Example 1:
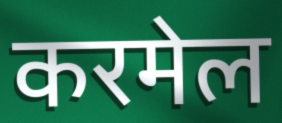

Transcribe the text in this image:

करमेल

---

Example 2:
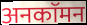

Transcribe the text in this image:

अनकॉमन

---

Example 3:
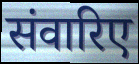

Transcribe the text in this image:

संवारिए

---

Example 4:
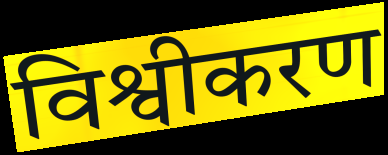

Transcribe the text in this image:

विश्वीकरण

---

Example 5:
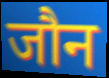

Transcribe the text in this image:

जौन